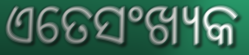
ଏତେସଂଖ୍ୟକ